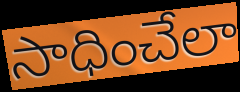
సాధించేలా